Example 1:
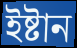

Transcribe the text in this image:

ইষ্টান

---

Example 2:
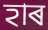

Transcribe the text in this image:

হাৰ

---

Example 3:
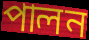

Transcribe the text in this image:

পালন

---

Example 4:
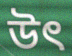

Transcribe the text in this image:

উৎ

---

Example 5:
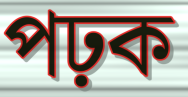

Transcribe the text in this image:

পঢ়ক